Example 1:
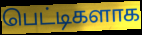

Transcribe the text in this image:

பெட்டிகளாக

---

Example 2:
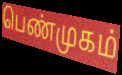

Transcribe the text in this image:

பெண்முகம்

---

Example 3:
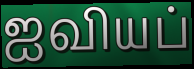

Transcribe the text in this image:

ஐவியப்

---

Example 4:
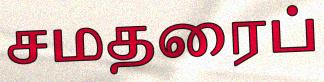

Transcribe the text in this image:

சமதரைப்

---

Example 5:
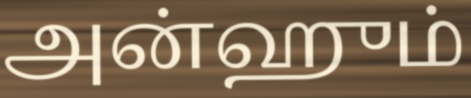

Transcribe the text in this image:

அன்ஹும்